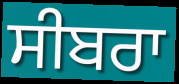
ਸੀਬਰਾ